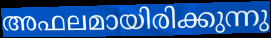
അഫലമായിരിക്കുന്നു